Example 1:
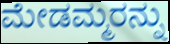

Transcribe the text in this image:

ಮೇಡಮ್ಮರನ್ನು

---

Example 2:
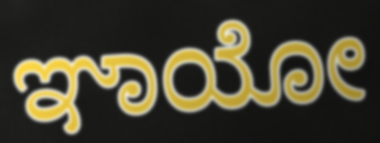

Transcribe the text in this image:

ಞಾಯೋ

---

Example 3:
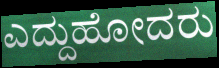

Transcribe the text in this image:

ಎದ್ದುಹೋದರು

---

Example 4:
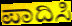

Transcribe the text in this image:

ಪಾದಿಸಿ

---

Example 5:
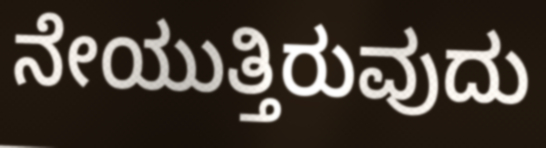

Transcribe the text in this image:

ನೇಯುತ್ತಿರುವುದು